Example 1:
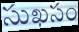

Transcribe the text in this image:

సుఖసం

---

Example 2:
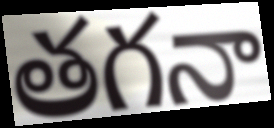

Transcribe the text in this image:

తగనా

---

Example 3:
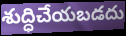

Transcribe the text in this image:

శుద్ధిచేయబడదు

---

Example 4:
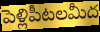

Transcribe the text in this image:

పెళ్లిపీటలమీద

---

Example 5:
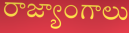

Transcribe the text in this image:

రాజ్యాంగాలు